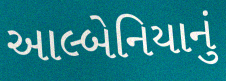
આલ્બેનિયાનું